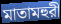
মাতামহুরী